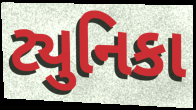
ટ્યુનિકા